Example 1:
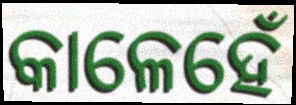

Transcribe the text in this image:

କାଳେହେଁ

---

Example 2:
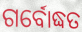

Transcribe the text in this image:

ଗର୍ବୋଦ୍ଧତ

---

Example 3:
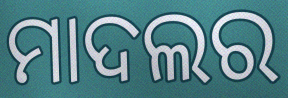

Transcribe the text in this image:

ମାଦଲର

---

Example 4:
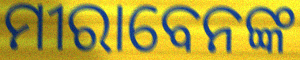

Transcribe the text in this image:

ମୀରାବେନଙ୍କ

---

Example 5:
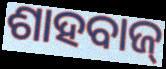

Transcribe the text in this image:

ଶାହବାଜ୍